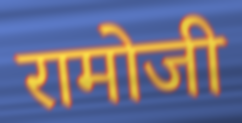
रामोजी